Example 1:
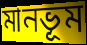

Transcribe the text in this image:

মানভূম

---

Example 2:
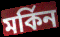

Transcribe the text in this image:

মর্কিন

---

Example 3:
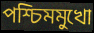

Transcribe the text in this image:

পশ্চিমমুখো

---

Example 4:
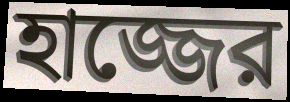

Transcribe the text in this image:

হাজ্জের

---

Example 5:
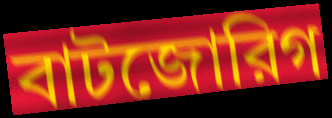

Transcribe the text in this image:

বাটজোরিগ